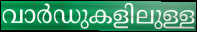
വാർഡുകളിലുള്ള